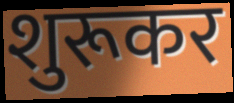
शुरूकर